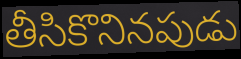
తీసికొనినపుడు